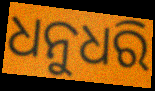
ଧନୁଧରି